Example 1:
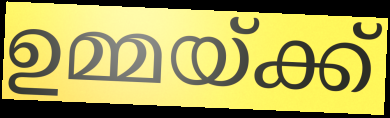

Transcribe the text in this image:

ഉമ്മയ്ക്ക്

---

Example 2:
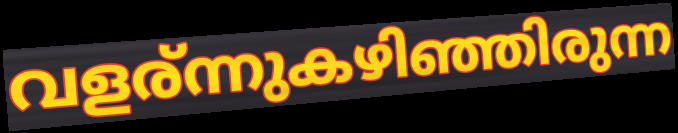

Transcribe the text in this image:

വളര്ന്നുകഴിഞ്ഞിരുന്ന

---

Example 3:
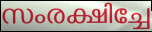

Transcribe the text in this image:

സംരക്ഷിച്ചേ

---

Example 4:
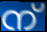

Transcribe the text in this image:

ന്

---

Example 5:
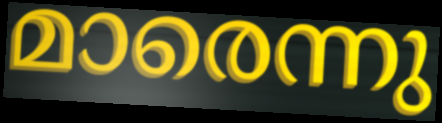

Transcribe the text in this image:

മാരെന്നു